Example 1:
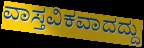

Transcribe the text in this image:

ವಾಸ್ತವಿಕವಾದದ್ದು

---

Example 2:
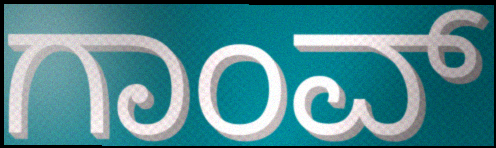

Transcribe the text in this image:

ಗಾಂವ್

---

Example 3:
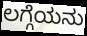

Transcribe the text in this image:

ಲಗ್ಗೆಯನು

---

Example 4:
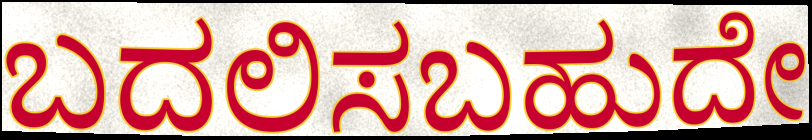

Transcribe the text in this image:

ಬದಲಿಸಬಹುದೇ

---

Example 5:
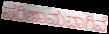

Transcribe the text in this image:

ಪರಿಣಾಮವಾಗಿವೆ